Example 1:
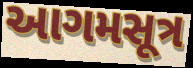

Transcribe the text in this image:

આગમસૂત્ર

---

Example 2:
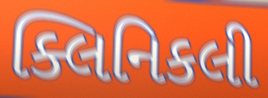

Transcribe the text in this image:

ક્લિનિકલી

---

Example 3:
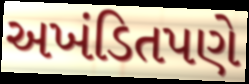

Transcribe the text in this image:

અખંડિતપણે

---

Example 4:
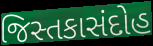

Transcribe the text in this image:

જિસ્તકાસંદોહ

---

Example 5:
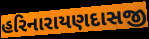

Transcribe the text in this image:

હરિનારાયણદાસજી